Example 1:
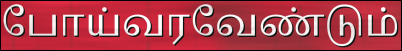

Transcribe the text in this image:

போய்வரவேண்டும்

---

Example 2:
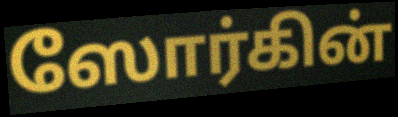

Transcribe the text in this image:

ஸோர்கின்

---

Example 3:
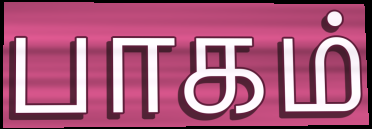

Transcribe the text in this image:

பாகம்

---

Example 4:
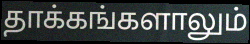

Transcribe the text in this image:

தாக்கங்களாலும்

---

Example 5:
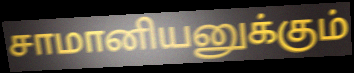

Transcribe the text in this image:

சாமானியனுக்கும்